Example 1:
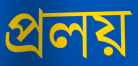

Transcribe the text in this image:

প্রলয়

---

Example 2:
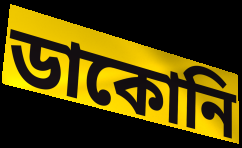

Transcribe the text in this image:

ডাকোনি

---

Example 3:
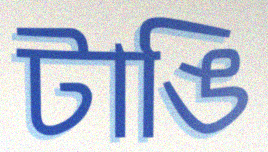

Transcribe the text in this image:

টাঙি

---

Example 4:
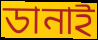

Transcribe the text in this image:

ডানাই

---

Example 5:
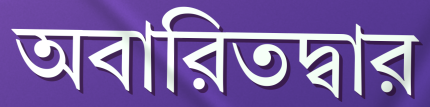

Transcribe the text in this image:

অবারিতদ্বার